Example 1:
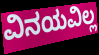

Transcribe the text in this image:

ವಿನಯವಿಲ್ಲ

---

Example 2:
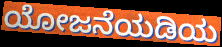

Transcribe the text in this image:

ಯೋಜನೆಯಡಿಯ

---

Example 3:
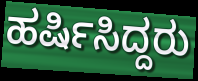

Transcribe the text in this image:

ಹರ್ಷಿಸಿದ್ದರು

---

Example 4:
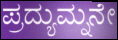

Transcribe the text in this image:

ಪ್ರದ್ಯುಮ್ನನೇ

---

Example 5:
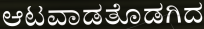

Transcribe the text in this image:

ಆಟವಾಡತೊಡಗಿದ